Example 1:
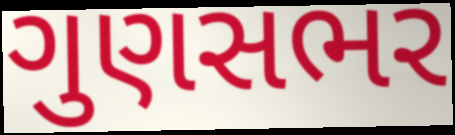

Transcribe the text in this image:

ગુણસભર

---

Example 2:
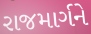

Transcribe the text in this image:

રાજમાર્ગને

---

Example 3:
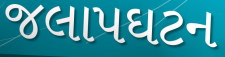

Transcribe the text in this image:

જલાપઘટન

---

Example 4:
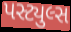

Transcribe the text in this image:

પસ્ટ્યુલ્સ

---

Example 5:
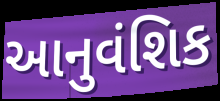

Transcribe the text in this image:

આનુવંશિક